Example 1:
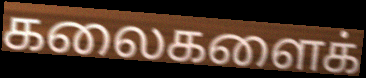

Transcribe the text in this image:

கலைகளைக்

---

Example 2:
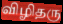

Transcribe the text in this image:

விழிதரு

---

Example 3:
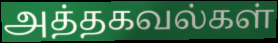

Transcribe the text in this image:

அத்தகவல்கள்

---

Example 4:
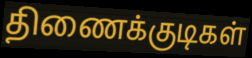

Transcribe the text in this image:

திணைக்குடிகள்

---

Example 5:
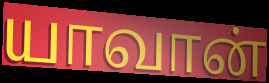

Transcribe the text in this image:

யாவான்